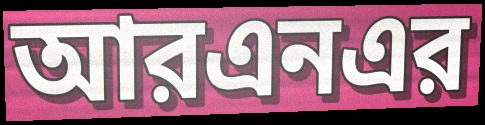
আরএনএর